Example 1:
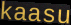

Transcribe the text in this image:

kaasu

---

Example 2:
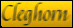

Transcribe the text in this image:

Cleghorn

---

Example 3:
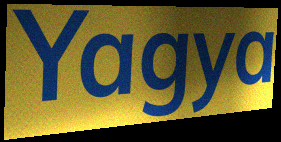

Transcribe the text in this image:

Yagya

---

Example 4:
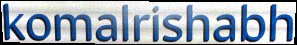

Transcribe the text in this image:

komalrishabh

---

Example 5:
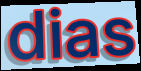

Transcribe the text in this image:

dias